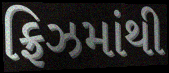
ફ્રિઝમાંથી